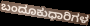
ಬಂದೂಕುಧಾರಿಗಳ